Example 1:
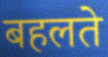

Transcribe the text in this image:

बहलते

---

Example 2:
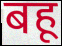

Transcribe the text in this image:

बहू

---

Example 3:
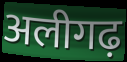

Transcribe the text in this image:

अलीगढ़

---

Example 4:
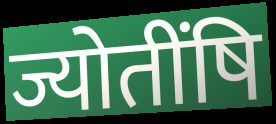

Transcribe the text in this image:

ज्योतींषि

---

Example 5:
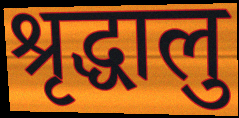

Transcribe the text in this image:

श्रृद्धालु